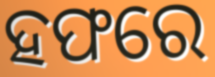
ହଫରେ